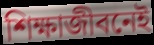
শিক্ষাজীবনেই